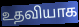
உதவியாக